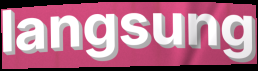
langsung